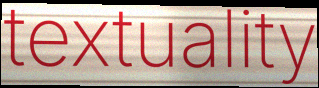
textuality